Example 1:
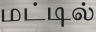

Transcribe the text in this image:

மட்டில்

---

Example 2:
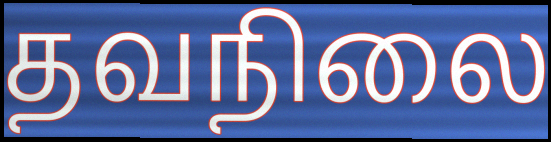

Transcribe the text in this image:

தவநிலை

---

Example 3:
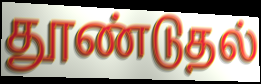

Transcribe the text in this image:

தூண்டுதல்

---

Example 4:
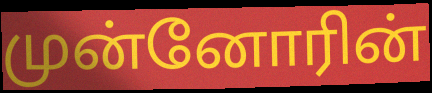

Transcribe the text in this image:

முன்னோரின்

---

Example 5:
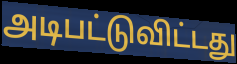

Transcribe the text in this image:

அடிபட்டுவிட்டது